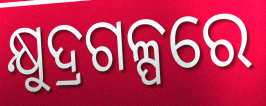
କ୍ଷୁଦ୍ରଗଳ୍ପରେ